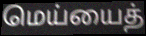
மெய்யைத்